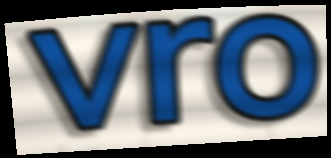
vro